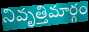
నివృత్తిమార్గం